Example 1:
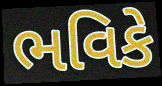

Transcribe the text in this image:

ભવિકે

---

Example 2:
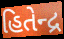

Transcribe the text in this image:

હિતેન્દ્ર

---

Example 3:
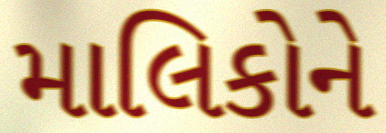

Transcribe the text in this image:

માલિકોને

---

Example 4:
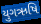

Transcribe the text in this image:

યુગઋષિ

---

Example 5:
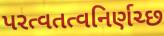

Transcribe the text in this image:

પરત્વતત્વનિર્ણચ્છ